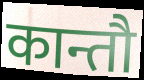
कान्तौ